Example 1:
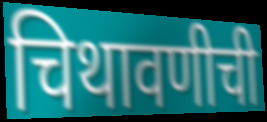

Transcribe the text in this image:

चिथावणीची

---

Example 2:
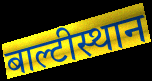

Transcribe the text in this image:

बाल्टीस्थान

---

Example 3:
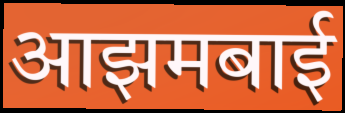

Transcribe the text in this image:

आझमबाई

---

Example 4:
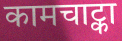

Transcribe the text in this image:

कामचाट्का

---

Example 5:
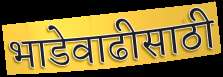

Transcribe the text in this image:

भाडेवाढीसाठी